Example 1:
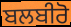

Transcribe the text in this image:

ਬਲਬੀਰੋ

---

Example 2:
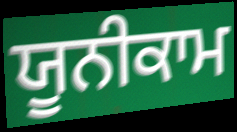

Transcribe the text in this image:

ਯੂਨੀਕਾਮ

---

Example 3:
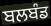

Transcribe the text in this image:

ਬਲਬੰਡ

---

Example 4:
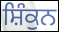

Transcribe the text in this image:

ਸ਼ਿੰਕੁਨ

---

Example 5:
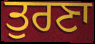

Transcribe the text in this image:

ਤੁਰਣਾ